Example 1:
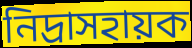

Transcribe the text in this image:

নিদ্রাসহায়ক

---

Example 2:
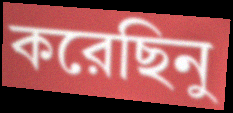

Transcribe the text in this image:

করেছিনু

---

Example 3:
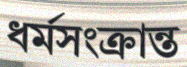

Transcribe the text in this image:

ধর্মসংক্রান্ত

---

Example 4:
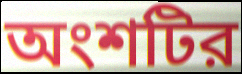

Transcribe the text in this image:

অংশটির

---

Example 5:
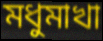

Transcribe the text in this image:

মধুমাখা